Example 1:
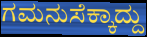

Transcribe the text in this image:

ಗಮನುಸೆಕ್ಕಾದ್ದು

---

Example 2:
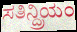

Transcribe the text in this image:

ಸತಿನ್ದ್ರಿಯಂ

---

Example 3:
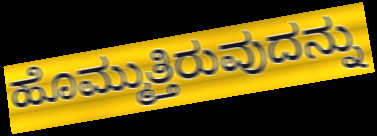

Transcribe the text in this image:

ಹೊಮ್ಮುತ್ತಿರುವುದನ್ನು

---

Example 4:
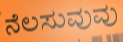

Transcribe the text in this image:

ನೆಲಸುವುವು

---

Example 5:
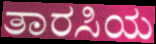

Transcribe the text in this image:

ತಾರಸಿಯ